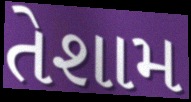
તેશામ